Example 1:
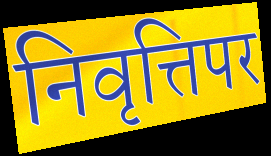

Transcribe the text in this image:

निवृत्तिपर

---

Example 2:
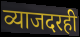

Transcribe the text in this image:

व्याजदरही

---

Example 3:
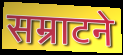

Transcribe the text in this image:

सम्राटने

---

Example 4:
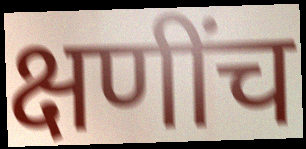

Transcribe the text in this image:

क्षणींच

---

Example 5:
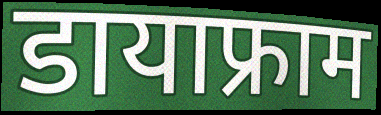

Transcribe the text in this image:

डायाफ्राम